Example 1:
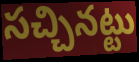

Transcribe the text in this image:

సచ్చినట్టు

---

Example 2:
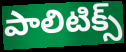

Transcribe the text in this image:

పాలిటిక్స్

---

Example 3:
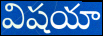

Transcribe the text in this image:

విషయా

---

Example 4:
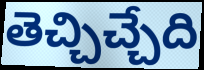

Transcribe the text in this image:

తెచ్చిచ్చేది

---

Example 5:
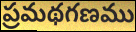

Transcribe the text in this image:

ప్రమథగణము